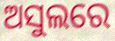
ଅସୁଲରେ